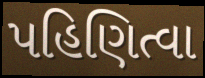
પહિણિત્વા